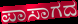
ಪಾಸಾಗದ